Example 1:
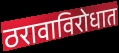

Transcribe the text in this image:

ठरावाविरोधात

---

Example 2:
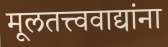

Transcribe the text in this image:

मूलतत्त्ववाद्यांना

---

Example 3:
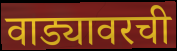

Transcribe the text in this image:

वाड्यावरची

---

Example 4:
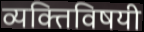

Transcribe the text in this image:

व्यक्तिविषयी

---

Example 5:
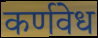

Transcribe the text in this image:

कर्णवेध